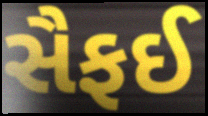
સૈફઈ